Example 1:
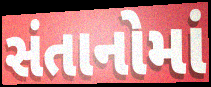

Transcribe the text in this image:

સંતાનોમાં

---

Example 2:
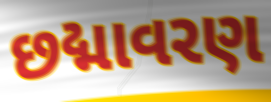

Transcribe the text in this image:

છદ્માવરણ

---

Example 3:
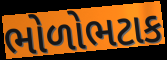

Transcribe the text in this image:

ભોળોભટાક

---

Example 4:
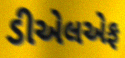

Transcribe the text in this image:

ડીએલએફ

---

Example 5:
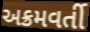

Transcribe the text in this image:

અક્રમવર્તી